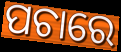
ପଚାରେ